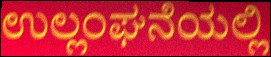
ಉಲ್ಲಂಘನೆಯಲ್ಲಿ